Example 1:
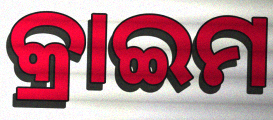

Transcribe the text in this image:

କ୍ରାଇମ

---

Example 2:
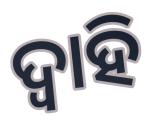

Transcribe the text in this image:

ଦ୍ୱାହି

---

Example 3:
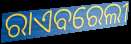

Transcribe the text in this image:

ରାଏବରେଲୀ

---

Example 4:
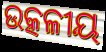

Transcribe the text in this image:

ଉତ୍କଳୀୟ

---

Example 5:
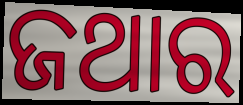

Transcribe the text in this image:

ଜଥାର